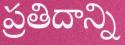
ప్రతిదాన్ని